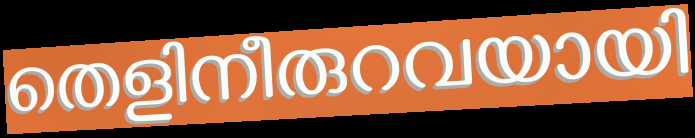
തെളിനീരുറവയായി